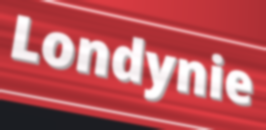
Londynie